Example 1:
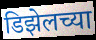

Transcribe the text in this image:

डिझेलच्या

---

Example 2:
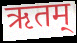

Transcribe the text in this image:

ऋतम्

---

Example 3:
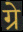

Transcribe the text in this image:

ग्रे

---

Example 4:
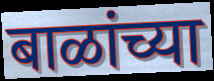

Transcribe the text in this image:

बाळांच्या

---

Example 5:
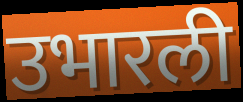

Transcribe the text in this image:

उभारली